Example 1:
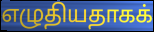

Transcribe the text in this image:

எழுதியதாகக்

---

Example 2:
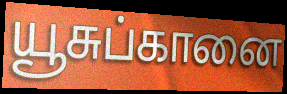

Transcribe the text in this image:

யூசுப்கானை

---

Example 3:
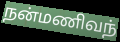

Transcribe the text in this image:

நன்மணிவந்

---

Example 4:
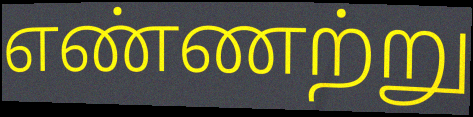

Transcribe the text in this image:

எண்ணற்று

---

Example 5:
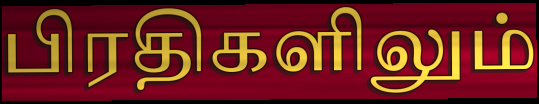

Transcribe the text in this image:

பிரதிகளிலும்